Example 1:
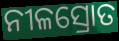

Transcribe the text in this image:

ନୀଳସ୍ରୋତ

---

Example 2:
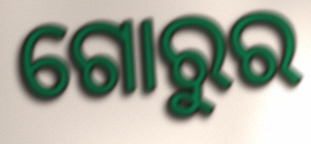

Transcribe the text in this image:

ଗୋରୁର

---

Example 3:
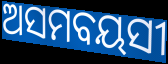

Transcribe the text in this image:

ଅସମବୟସୀ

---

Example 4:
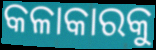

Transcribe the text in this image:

କଳାକାରକୁ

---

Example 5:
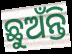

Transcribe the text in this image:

ଛୁଅଁନ୍ତି